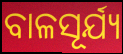
ବାଳସୂର୍ଯ୍ୟ